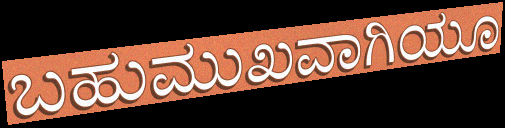
ಬಹುಮುಖವಾಗಿಯೂ